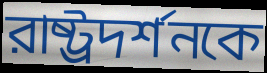
রাষ্ট্রদর্শনকে